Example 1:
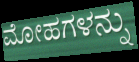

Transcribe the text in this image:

ಮೋಹಗಳನ್ನು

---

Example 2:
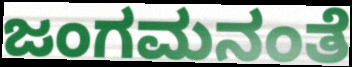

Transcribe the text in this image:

ಜಂಗಮನಂತೆ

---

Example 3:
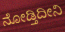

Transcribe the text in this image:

ನೋಡ್ತಿದೀನಿ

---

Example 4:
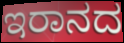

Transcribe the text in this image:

ಇರಾನದ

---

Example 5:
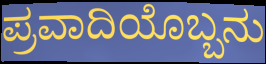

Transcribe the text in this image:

ಪ್ರವಾದಿಯೊಬ್ಬನು